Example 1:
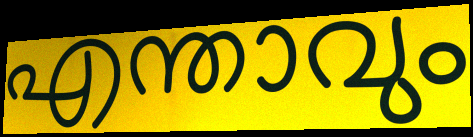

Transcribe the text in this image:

എന്താവും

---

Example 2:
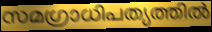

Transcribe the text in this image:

സമഗ്രാധിപത്യത്തിൽ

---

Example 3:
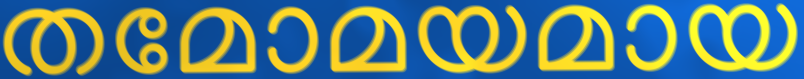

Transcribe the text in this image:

തമോമയമായ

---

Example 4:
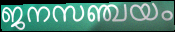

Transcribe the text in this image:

ജനസഞ്ചയം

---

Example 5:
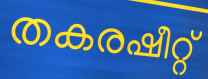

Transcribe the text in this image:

തകരഷീറ്റ്